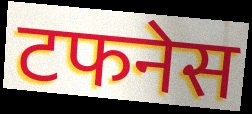
टफनेस